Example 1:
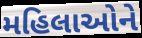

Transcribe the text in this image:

મહિલાઓને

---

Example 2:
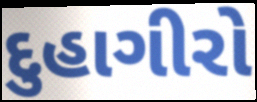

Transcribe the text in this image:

દુહાગીરો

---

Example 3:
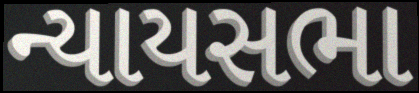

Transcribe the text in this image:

ન્યાયસભા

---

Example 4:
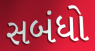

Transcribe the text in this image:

સબંધો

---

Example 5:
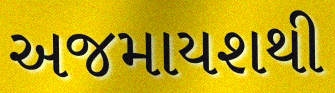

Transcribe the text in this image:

અજમાયશથી